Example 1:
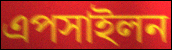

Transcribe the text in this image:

এপসাইলন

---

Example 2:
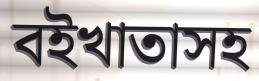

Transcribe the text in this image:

বইখাতাসহ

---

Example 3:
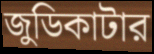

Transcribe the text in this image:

জুডিকাটার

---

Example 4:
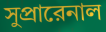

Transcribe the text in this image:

সুপ্রারেনাল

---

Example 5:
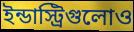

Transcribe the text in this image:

ইন্ডাস্ট্রিগুলোও